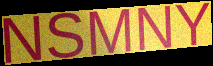
NSMNY